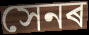
সেনৰ